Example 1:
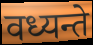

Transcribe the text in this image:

वध्यन्ते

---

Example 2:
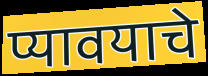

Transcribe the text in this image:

प्यावयाचे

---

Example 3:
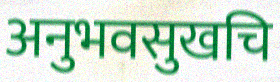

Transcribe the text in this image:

अनुभवसुखचि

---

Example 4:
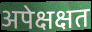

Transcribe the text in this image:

अपेक्षक्षत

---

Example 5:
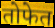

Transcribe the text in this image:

तोफेत